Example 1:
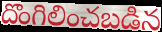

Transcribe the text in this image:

దొంగిలించబడిన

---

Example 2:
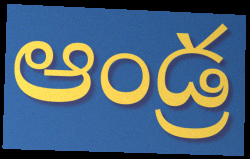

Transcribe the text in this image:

ఆండ్ర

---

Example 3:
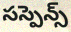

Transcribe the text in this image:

సస్పెన్స్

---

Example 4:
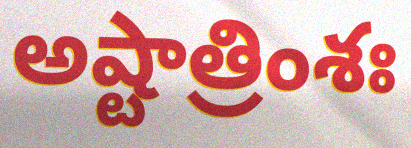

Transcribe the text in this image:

అష్టాత్రింశః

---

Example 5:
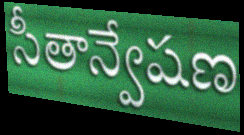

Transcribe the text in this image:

సీతాన్వేషణ